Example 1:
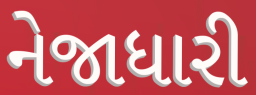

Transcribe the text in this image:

નેજાધારી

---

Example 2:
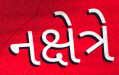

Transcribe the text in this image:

નક્ષેત્રે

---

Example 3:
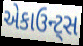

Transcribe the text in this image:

એકાઉન્ટ્સ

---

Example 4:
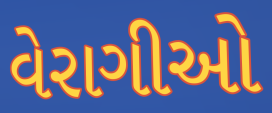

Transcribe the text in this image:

વેરાગીઓ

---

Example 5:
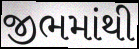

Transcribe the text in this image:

જીભમાંથી